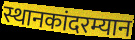
स्थानकांदरम्यान